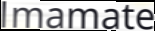
Imamate